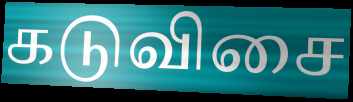
கடுவிசை